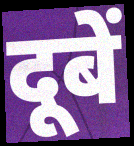
दूबें